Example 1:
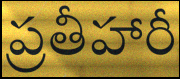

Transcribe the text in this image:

ప్రతీహారీ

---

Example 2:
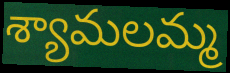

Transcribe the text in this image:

శ్యామలమ్మ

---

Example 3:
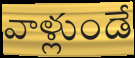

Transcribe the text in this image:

వాళ్లుండే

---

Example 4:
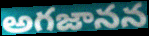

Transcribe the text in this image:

అగజానన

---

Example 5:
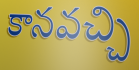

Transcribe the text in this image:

కానవచ్చి